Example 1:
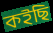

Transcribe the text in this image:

কইছি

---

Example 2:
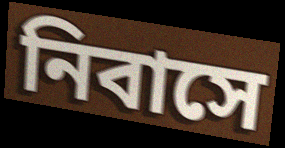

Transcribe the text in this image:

নিবাসে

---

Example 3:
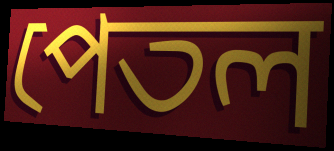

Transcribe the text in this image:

পেতল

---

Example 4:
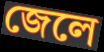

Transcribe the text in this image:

জেলে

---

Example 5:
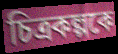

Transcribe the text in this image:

চিত্রকল্পকে